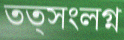
তত্সংলগ্ন